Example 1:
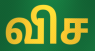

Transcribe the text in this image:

விச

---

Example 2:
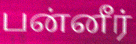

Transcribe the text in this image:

பன்னீர்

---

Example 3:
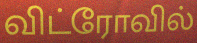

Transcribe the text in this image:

விட்ரோவில்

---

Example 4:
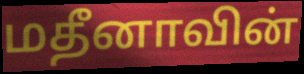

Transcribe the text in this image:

மதீனாவின்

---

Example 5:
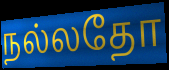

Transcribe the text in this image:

நல்லதோ